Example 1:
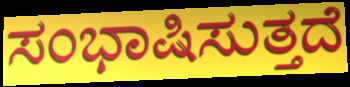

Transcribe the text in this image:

ಸಂಭಾಷಿಸುತ್ತದೆ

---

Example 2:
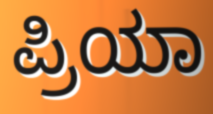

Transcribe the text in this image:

ಪ್ರಿಯಾ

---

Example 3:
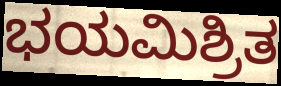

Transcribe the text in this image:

ಭಯಮಿಶ್ರಿತ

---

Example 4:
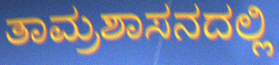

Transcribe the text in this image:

ತಾಮ್ರಶಾಸನದಲ್ಲಿ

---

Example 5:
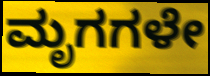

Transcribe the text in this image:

ಮೃಗಗಳೇ